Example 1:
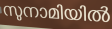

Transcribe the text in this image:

സുനാമിയിൽ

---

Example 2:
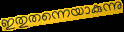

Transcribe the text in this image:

ഇതുതന്നെയാകുന്നു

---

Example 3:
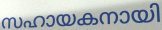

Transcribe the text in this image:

സഹായകനായി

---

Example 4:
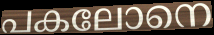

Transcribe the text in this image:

പകലോനെ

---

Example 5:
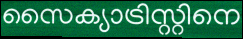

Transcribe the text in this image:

സൈക്യാട്രിസ്റ്റിനെ